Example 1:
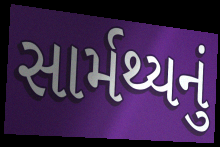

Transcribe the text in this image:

સાર્મથ્યનું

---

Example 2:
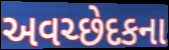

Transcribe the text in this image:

અવચ્છેદકના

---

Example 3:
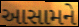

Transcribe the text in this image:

આસામને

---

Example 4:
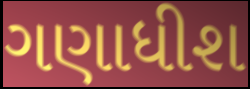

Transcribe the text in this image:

ગણાધીશ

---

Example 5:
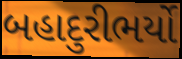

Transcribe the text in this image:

બહાદુરીભર્યો